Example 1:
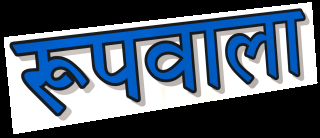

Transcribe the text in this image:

रूपवाला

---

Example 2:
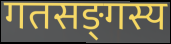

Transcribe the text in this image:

गतसङ्गस्य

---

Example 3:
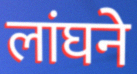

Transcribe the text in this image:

लांघने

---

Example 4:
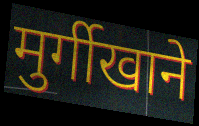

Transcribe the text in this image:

मुर्गीखाने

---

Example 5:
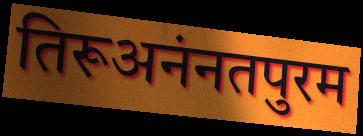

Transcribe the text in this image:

तिरूअनंनतपुरम